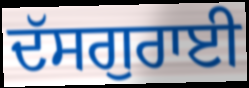
ਦੱਸਗੁਰਾਈ